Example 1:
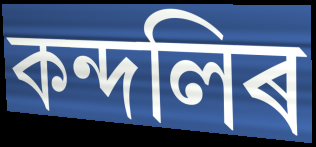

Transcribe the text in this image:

কন্দলিৰ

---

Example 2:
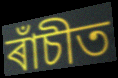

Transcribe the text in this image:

ৰাঁচীত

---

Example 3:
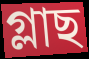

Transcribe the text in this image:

গ্লাছ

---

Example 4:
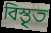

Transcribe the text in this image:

বিস্তৃত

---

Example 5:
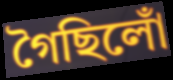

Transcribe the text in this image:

গৈছিলোঁ